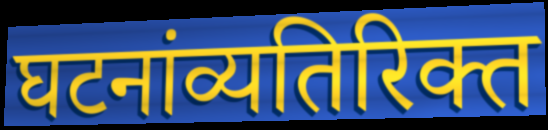
घटनांव्यतिरिक्त